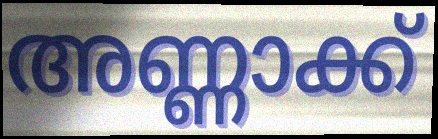
അണ്ണാക്ക്